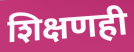
शिक्षणही